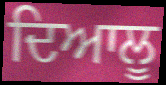
ਦਿਆਲੂ